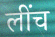
लींच